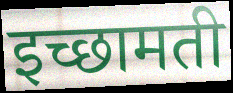
इच्छामती